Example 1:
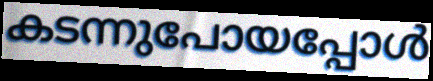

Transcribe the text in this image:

കടന്നുപോയപ്പോൾ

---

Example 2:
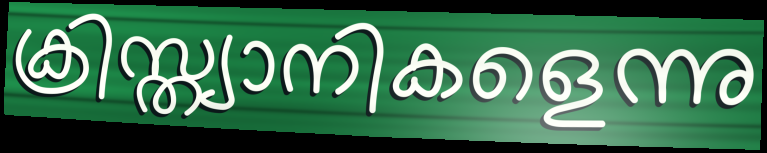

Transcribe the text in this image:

ക്രിസ്ത്യാനികളെന്നു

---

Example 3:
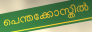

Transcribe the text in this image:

പെന്തക്കോസ്തിൽ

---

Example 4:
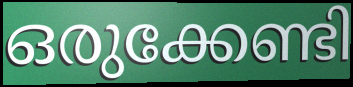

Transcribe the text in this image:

ഒരുക്കേണ്ടി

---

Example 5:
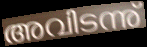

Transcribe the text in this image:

അവിടന്നു്